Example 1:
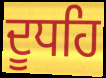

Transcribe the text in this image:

ਦੂਧਹਿ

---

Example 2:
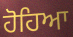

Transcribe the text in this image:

ਹੋਹਿਆ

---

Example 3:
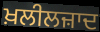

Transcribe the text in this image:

ਖ਼ਲੀਲਜ਼ਾਦ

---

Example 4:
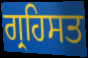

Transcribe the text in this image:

ਗ੍ਰਹਿਸਤ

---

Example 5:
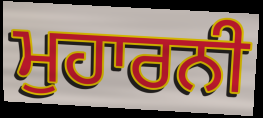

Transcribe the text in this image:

ਮੁਹਾਰਨੀ